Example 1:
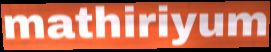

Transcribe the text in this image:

mathiriyum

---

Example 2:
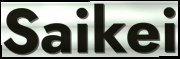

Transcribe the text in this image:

Saikei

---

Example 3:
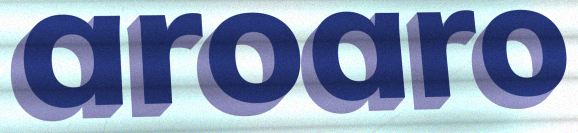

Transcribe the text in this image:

aroaro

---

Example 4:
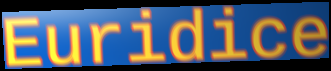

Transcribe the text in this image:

Euridice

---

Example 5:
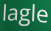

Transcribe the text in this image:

lagle